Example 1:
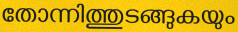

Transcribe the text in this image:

തോന്നിത്തുടങ്ങുകയും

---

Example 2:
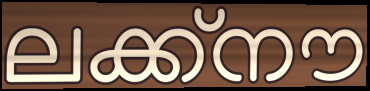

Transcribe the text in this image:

ലക്ക്നൗ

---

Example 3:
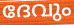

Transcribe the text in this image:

ദേവും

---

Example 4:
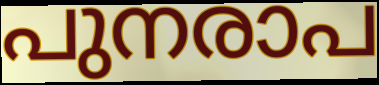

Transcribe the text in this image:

പുനരാപ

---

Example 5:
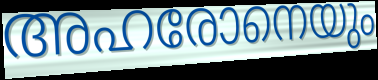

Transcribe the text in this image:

അഹരോനെയും